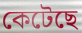
কেটেছে